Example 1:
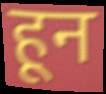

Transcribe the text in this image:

हून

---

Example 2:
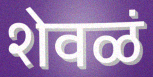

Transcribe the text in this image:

शेवळं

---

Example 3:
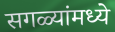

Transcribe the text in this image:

सगळ्यांमध्ये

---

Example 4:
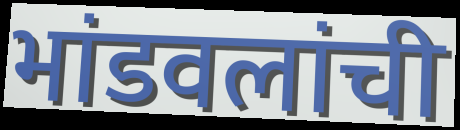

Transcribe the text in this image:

भांडवलांची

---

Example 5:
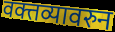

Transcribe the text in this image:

वक्तव्यावरुन